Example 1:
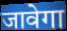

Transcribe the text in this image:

जावेगा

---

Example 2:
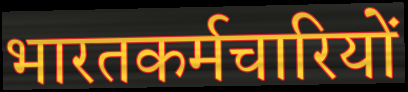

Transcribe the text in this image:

भारतकर्मचारियों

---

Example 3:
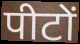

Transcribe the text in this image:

पीटों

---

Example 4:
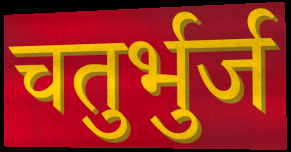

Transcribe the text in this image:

चतुर्भुर्ज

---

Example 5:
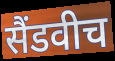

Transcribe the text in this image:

सैंडवीच